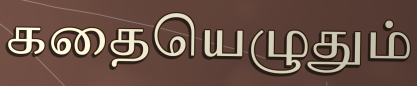
கதையெழுதும்